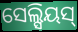
ସେଲ୍ସିୟସ୍